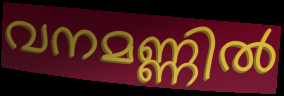
വനമണ്ണിൽ